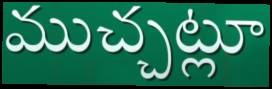
ముచ్చట్లూ